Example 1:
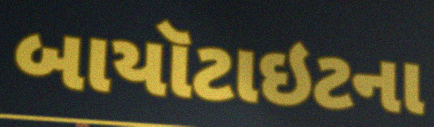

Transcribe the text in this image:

બાયૉટાઇટના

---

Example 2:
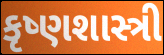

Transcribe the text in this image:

કૃષ્ણશાસ્ત્રી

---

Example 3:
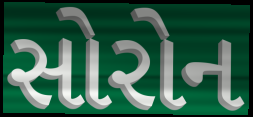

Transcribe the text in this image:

સોરોન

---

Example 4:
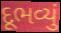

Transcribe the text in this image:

દૂભવ્યું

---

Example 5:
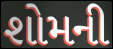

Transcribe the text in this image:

શોમની